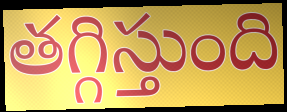
తగ్గిస్తుంది